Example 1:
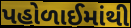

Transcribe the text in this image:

પહોળાઈમાંથી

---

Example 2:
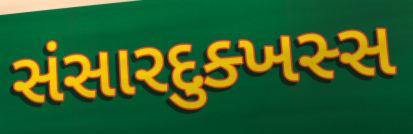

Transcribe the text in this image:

સંસારદુક્ખસ્સ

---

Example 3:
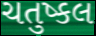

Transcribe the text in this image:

ચતુષ્કલ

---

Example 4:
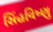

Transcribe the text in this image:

સિંહવિષ્ણુ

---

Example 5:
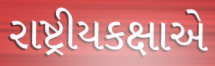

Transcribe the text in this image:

રાષ્ટ્રીયકક્ષાએ